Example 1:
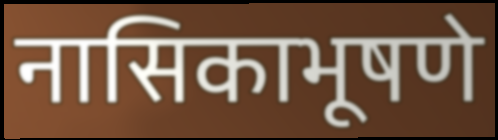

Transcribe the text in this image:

नासिकाभूषणे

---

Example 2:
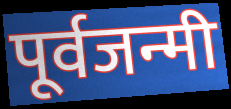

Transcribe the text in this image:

पूर्वजन्मी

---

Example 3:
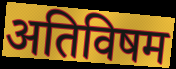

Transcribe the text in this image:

अतिविषम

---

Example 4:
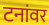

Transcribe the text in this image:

टनांवर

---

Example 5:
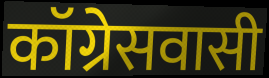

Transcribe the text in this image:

कॉग्रेसवासी